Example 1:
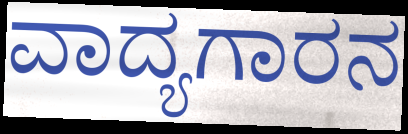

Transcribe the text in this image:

ವಾದ್ಯಗಾರನ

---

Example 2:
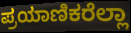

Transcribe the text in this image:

ಪ್ರಯಾಣಿಕರೆಲ್ಲಾ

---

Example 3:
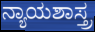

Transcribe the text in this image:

ನ್ಯಾಯಶಾಸ್ತ್ರ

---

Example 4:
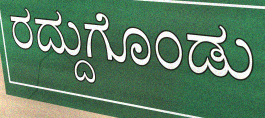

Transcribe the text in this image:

ರದ್ದುಗೊಂಡು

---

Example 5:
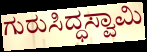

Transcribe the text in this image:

ಗುರುಸಿದ್ಧಸ್ವಾಮಿ